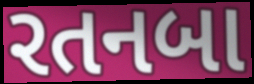
રતનબા